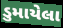
ડુમાયેલા